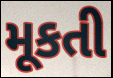
મૂકતી